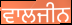
ਵਾਲਜੀਨ